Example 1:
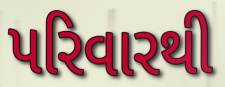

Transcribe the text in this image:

પરિવારથી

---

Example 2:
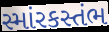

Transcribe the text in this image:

સ્માંરકસ્તંભ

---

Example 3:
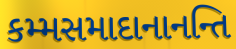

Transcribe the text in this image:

કમ્મસમાદાનાનન્તિ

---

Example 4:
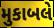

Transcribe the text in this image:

મુકાબલે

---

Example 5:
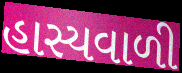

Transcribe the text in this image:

હાસ્યવાળી